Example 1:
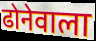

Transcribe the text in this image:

ढोनेवाला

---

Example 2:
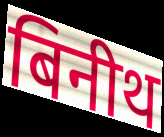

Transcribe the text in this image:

बिनीथ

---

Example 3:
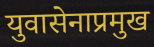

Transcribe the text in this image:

युवासेनाप्रमुख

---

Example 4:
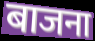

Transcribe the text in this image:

बाजना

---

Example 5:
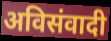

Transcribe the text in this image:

अविसंवादी